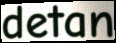
detan